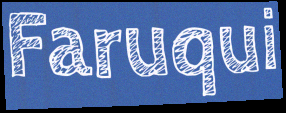
Faruqui